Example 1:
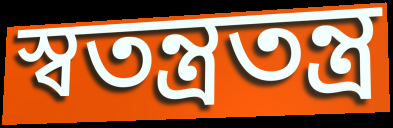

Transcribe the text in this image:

স্বতন্ত্ৰতন্ত্ৰ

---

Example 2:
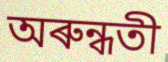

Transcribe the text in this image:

অৰুন্ধতী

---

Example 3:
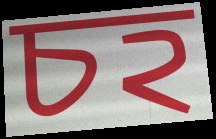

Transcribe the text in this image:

চহ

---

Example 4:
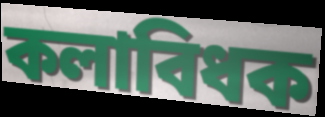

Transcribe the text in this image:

কলাবিধক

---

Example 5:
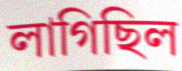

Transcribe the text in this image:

লাগিছিল